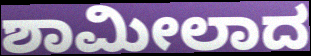
ಶಾಮೀಲಾದ